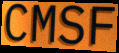
CMSF